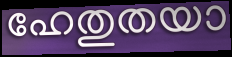
ഹേതുതയാ